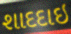
શાદદાઇ